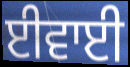
ਈਵਾਈ